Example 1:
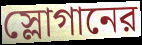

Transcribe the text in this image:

স্লোগানের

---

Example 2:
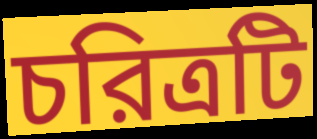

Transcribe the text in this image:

চরিত্রটি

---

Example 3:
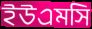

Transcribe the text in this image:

ইউএমসি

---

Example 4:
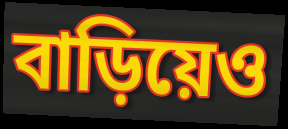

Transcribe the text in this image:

বাড়িয়েও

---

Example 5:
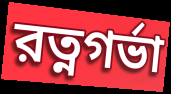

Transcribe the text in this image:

রত্নগর্ভা